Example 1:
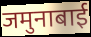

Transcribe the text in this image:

जमुनाबाई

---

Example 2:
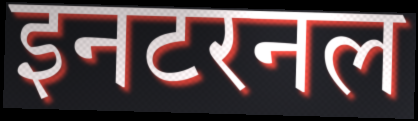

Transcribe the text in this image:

इनटरनल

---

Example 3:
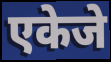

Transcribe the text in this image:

एकेजे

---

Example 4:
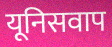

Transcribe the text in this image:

यूनिसवाप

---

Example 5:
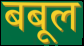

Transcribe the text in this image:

बबूल